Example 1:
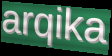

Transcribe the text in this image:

arqika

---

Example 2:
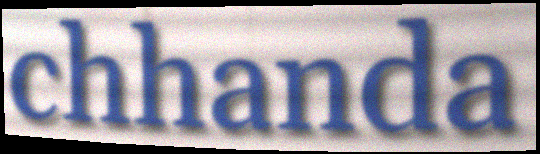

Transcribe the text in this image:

chhanda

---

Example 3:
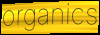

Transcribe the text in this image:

organics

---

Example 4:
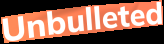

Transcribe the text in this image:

Unbulleted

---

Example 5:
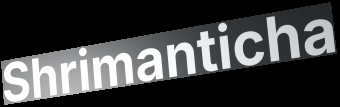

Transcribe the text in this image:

Shrimanticha